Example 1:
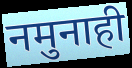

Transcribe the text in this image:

नमुनाही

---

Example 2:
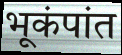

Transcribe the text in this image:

भूकंपांत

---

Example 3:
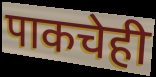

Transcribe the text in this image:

पाकचेही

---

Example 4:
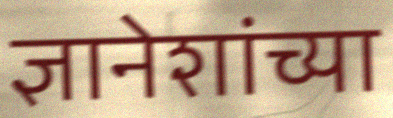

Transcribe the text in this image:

ज्ञानेशांच्या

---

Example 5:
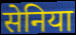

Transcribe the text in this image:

सेनिया